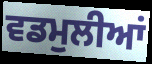
ਵਡਮੁਲੀਆਂ